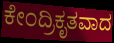
ಕೇಂದ್ರಿಕೃತವಾದ